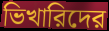
ভিখারিদের